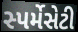
સ્પર્મેસેટી